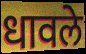
धावले